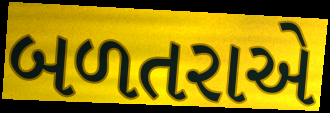
બળતરાએ